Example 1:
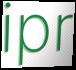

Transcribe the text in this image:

ipr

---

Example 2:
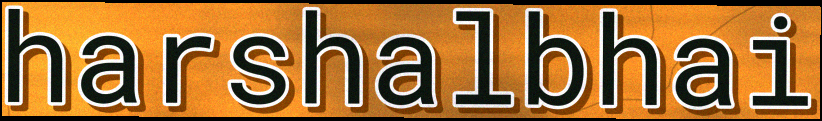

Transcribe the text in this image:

harshalbhai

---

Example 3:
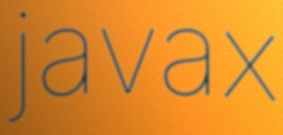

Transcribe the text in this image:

javax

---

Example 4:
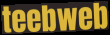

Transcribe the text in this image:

teebweb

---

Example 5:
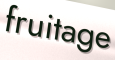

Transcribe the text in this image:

fruitage